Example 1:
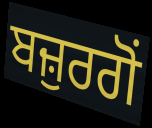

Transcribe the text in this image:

ਬਜ਼ੁਰਗੋਂ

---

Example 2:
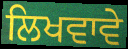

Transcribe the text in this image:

ਲਿਖਵਾਵੇ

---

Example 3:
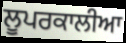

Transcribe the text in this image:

ਲੂਪਰਕਾਲੀਆ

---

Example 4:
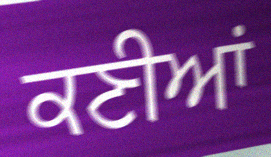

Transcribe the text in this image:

ਕਣੀਆਂ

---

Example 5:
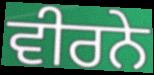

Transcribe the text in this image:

ਵੀਰਨੇ